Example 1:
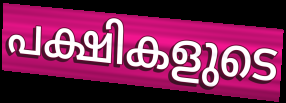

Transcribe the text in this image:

പക്ഷികളുടെ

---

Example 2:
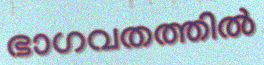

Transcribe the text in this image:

ഭാഗവതത്തിൽ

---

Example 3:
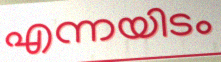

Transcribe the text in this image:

എന്നയിടം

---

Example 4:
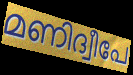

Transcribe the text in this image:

മണിദ്വീപേ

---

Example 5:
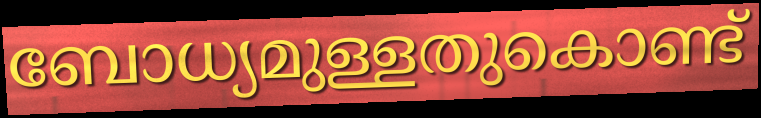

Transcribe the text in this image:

ബോധ്യമുള്ളതുകൊണ്ട്